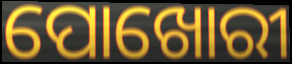
ପୋଖୋରୀ